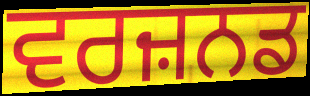
ਵਰਜ਼ਨਡ